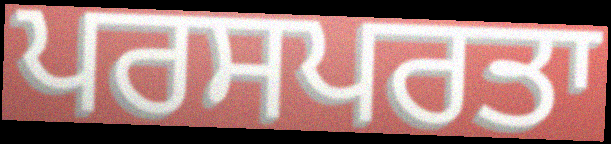
ਪਰਸਪਰਤਾ